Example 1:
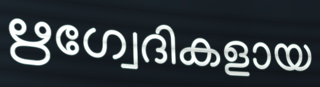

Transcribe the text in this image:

ഋഗ്വേദികളായ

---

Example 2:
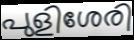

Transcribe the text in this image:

പുളിശേരി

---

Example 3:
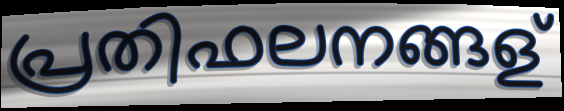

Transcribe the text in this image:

പ്രതിഫലനങ്ങള്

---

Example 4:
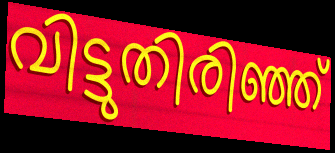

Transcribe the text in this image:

വിട്ടുതിരിഞ്ഞ്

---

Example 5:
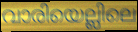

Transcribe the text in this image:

വാരിയെല്ലിലെ